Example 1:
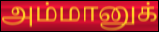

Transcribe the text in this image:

அம்மானுக்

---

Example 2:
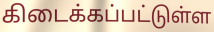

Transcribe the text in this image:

கிடைக்கப்பட்டுள்ள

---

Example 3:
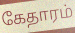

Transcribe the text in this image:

கேதாரம்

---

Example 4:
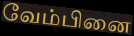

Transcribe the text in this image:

வேம்பினை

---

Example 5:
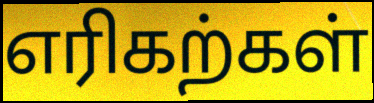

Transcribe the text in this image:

எரிகற்கள்